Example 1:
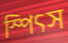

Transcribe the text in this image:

স্পিৎস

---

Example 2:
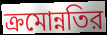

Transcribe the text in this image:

ক্রমোন্নতির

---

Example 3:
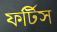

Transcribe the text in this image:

ফর্টিস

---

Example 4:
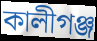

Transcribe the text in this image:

কালীগঞ্জ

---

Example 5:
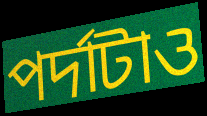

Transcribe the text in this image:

পর্দাটাও